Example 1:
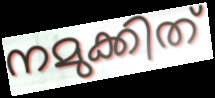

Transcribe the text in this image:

നമുക്കിത്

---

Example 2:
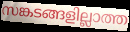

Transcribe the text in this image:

സങ്കടങ്ങളില്ലാത്ത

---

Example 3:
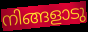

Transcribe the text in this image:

നിങ്ങളാടു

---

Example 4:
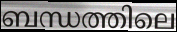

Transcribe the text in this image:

ബന്ധത്തിലെ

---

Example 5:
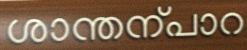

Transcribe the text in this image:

ശാന്തന്പാറ